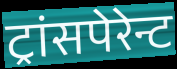
ट्रांसपेरेन्ट